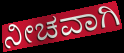
ನೀಚವಾಗಿ